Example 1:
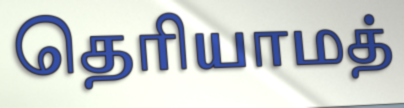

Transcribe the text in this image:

தெரியாமத்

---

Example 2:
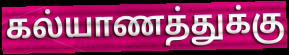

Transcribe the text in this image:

கல்யாணத்துக்கு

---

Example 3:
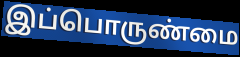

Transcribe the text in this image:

இப்பொருண்மை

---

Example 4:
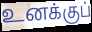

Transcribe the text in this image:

உனக்குப்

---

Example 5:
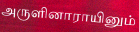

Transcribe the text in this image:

அருளினாராயினும்